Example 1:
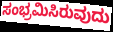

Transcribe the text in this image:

ಸಂಭ್ರಮಿಸಿರುವುದು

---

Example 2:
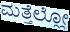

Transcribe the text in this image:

ಮತ್ತೆಲ್ಲೋ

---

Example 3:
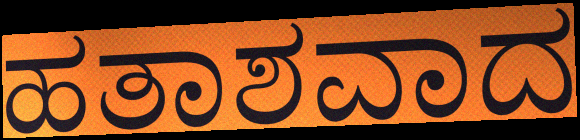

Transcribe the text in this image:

ಹತಾಶವಾದ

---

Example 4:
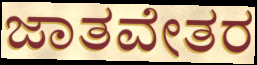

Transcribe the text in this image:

ಜಾತವೇತರ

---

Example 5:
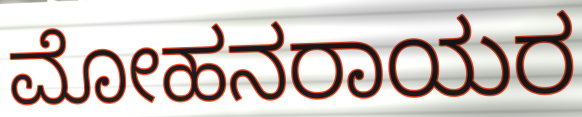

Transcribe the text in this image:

ಮೋಹನರಾಯರ